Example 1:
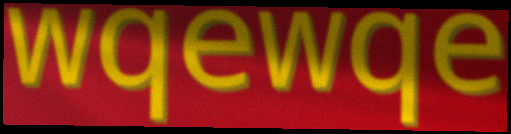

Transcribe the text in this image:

wqewqe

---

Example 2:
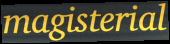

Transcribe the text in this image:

magisterial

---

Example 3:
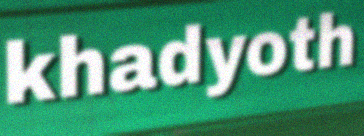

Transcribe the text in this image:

khadyoth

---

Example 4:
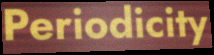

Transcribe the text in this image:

Periodicity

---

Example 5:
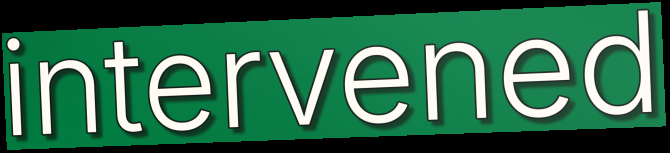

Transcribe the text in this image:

intervened